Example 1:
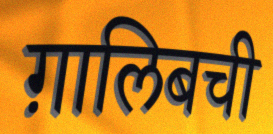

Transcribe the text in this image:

ग़ालिबची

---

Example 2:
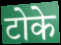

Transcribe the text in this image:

टोके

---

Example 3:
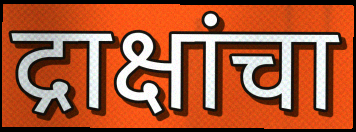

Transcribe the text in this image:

द्राक्षांचा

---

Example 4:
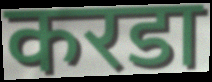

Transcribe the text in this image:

करडा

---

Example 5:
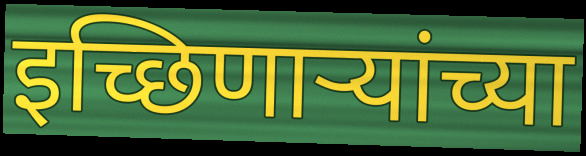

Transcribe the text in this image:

इच्छिणार्‍यांच्या